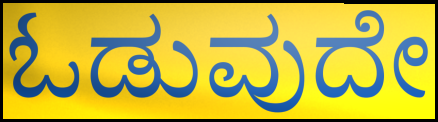
ಓಡುವುದೇ